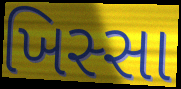
ખિસ્સા